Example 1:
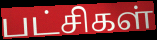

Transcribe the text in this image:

பட்சிகள்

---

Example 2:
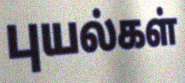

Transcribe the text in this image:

புயல்கள்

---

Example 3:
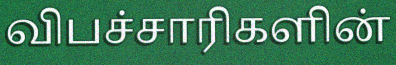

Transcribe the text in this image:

விபச்சாரிகளின்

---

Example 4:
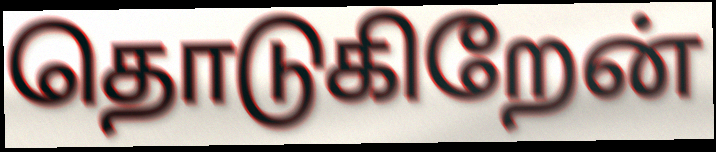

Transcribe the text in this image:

தொடுகிறேன்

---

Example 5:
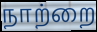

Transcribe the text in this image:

நாற்றை